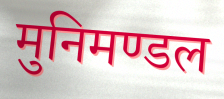
मुनिमण्डल